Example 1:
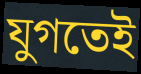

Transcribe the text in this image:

যুগতেই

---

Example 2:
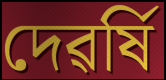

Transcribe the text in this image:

দেৱৰ্ষি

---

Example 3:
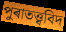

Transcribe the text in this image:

পুৰাতত্ত্ববিদ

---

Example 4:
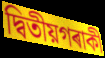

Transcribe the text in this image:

দ্বিতীয়গৰাকী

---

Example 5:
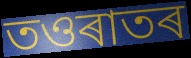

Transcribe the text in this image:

তওৰাতৰ